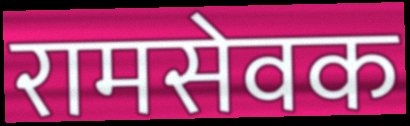
रामसेवक